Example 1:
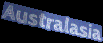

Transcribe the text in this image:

Australasia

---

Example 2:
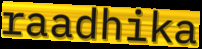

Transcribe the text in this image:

raadhika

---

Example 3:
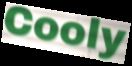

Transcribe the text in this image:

Cooly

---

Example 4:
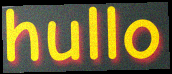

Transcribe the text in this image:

hullo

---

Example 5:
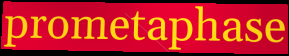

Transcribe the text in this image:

prometaphase